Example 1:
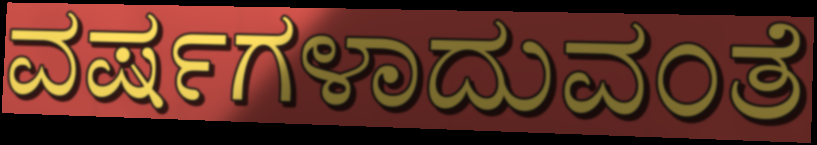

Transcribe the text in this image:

ವರ್ಷಗಳಾದುವಂತೆ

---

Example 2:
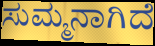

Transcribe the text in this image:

ಸುಮ್ಮನಾಗಿದೆ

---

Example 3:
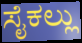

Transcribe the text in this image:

ಸೈಕಲ್ಲು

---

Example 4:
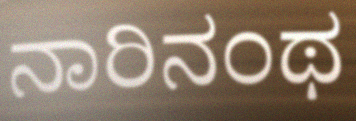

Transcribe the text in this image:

ನಾರಿನಂಥ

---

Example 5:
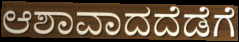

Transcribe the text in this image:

ಆಶಾವಾದದೆಡೆಗೆ